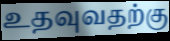
உதவுவதற்கு